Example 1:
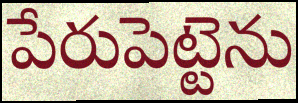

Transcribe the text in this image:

పేరుపెట్టెను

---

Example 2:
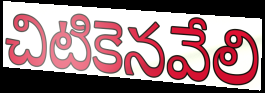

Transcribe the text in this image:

చిటికెనవేలి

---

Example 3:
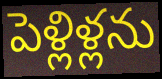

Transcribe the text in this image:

పెళ్లిళ్లను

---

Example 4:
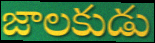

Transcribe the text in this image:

జాలకుడు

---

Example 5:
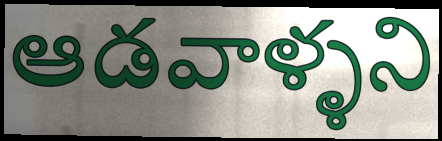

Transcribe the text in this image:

ఆడవాళ్ళని